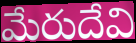
మేరుదేవి